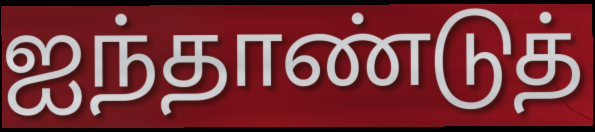
ஐந்தாண்டுத்